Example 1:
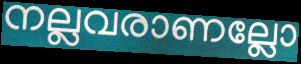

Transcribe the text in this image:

നല്ലവരാണല്ലോ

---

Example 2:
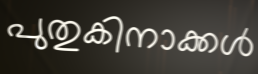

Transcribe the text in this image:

പുതുകിനാക്കൾ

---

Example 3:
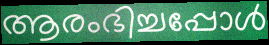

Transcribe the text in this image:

ആരംഭിച്ചപ്പോൾ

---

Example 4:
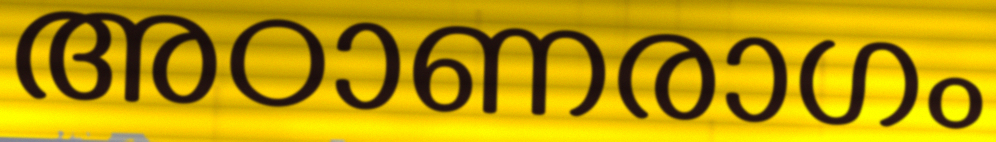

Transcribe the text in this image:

അഠാണരാഗം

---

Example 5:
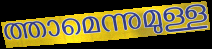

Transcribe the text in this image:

ത്താമെന്നുമുള്ള